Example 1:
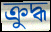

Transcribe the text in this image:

ক্ৰুদ্ধ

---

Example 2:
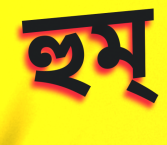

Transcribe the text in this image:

হুম্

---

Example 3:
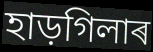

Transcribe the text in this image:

হাড়গিলাৰ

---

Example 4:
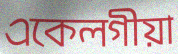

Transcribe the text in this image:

একেলগীয়া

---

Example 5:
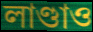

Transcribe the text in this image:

লাণ্ডাও